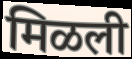
मिळली